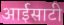
आईसाटी